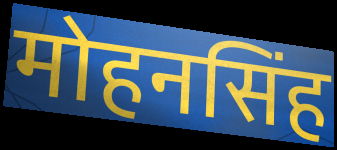
मोहनसिंह